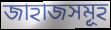
জাহাজসমূহ